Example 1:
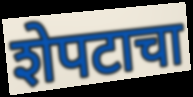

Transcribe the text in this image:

शेपटाचा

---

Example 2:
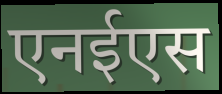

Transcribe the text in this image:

एनईएस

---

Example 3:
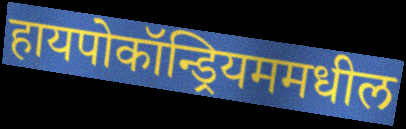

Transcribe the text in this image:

हायपोकॉन्ड्रियममधील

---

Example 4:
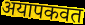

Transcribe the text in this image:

अयापकवत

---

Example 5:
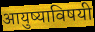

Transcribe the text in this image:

आयुष्याविषयी